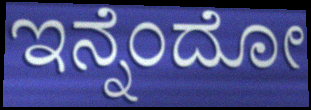
ಇನ್ನೆಂದೋ